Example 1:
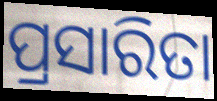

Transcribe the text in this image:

ପ୍ରସାରିତା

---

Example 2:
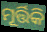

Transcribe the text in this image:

ମୂର୍ତ୍ତିକି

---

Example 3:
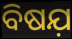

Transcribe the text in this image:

ବିଷଯ଼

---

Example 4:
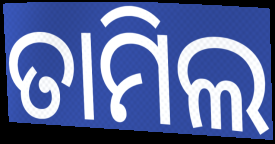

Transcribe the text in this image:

ତାମିଲ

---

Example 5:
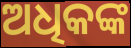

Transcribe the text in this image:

ଅଧିକଙ୍କ